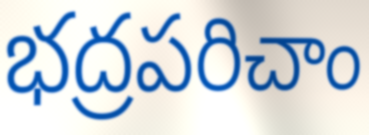
భద్రపరిచాం